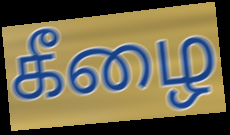
கீழை